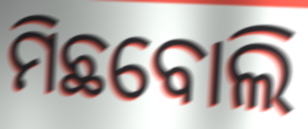
ମିଛବୋଲି